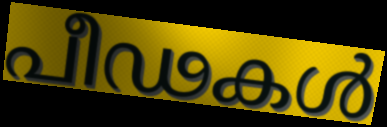
പീഢകൾ